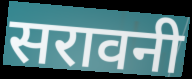
सरावनी